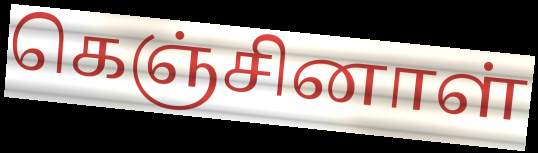
கெஞ்சினாள்